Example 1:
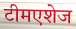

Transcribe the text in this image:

टीमएशेज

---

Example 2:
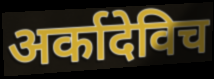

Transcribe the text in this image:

अर्कादेविच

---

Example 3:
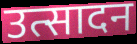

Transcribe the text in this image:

उत्सादन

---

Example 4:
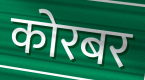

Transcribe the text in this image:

कोरबर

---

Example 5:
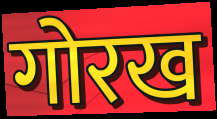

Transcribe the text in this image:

गोरख